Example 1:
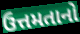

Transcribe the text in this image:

ઉત્તમતાનો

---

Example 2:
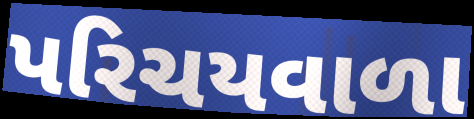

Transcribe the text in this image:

પરિચયવાળા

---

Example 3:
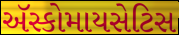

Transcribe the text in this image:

ઍસ્કોમાયસેટિસ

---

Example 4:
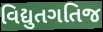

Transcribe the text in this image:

વિદ્યુતગતિજ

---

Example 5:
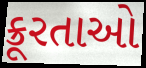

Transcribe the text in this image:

ક્રૂરતાઓ